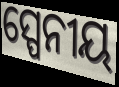
ସ୍ପେନୀୟ